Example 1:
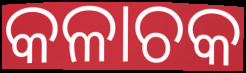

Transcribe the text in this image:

କଳାଚକ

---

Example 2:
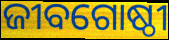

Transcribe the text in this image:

ଜୀବଗୋଷ୍ଠୀ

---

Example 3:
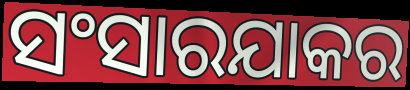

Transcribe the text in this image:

ସଂସାରଯାକର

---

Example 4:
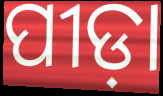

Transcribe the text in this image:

ପୀଡ଼ା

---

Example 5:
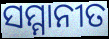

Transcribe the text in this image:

ସମ୍ମାନୀତ